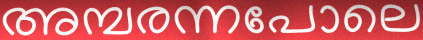
അമ്പരന്നപോലെ